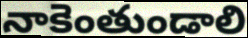
నాకెంతుండాలి